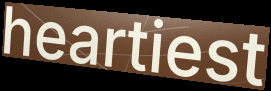
heartiest